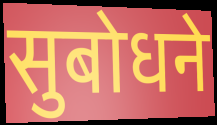
सुबोधने